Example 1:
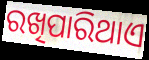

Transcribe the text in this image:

ରଖିପାରିଥାଏ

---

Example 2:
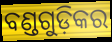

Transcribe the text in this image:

ବଣ୍ଡଗୁଡ଼ିକର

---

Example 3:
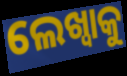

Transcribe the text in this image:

ଲେଖ୍ବାକୁ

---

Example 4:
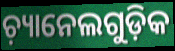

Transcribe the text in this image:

ଚ଼୍ୟାନେଲଗୁଡ଼ିକ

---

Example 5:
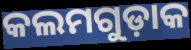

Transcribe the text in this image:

କଲମଗୁଡ଼ାକ